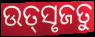
ଉତ୍‌ସୃଜତୁ